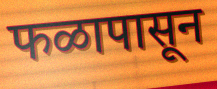
फळापासून